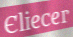
Eliecer